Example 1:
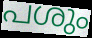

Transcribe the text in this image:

പശും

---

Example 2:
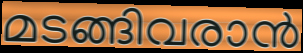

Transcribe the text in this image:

മടങ്ങിവരാൻ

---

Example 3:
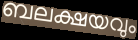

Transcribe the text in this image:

ബലക്ഷയവും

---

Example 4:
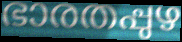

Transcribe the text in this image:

ഭാരതപ്പുഴ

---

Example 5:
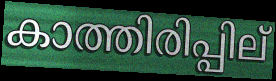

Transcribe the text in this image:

കാത്തിരിപ്പില്